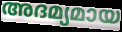
അദമ്യമായ